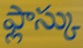
ఫ్లాస్కు